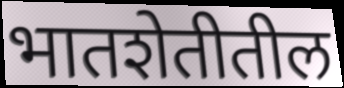
भातशेतीतील